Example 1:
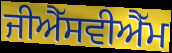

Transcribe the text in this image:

ਜੀਐੱਸਵੀਐੱਮ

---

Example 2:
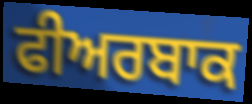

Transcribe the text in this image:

ਫੀਅਰਬਾਕ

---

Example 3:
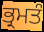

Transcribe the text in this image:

ਭ੍ਰਮਤੰ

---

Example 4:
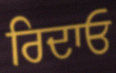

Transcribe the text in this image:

ਰਿਦਾਓ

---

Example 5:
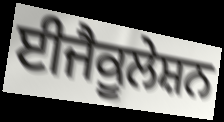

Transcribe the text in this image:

ਈਜੈਕੂਲੇਸ਼ਨ